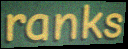
ranks